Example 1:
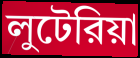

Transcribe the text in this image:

লুটেরিয়া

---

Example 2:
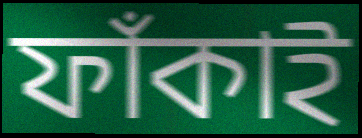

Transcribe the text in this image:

ফাঁকাই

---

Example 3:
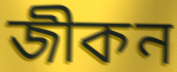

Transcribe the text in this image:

জীকন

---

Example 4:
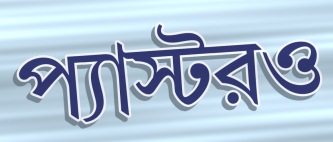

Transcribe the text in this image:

প্যাস্টরও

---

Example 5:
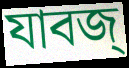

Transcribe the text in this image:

যাবজ্